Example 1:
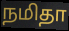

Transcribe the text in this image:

நமிதா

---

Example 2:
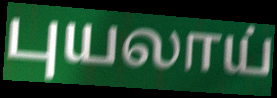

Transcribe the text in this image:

புயலாய்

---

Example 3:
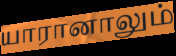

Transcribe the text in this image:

யாரானாலும்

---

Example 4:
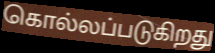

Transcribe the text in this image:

கொல்லப்படுகிறது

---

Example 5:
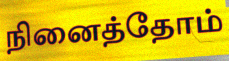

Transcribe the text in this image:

நினைத்தோம்